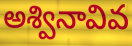
అశ్వినావివ